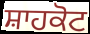
ਸ਼ਾਹਕੋਟ